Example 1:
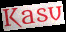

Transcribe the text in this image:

Kasu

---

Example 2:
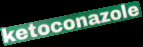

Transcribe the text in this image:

ketoconazole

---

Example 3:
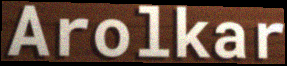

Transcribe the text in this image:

Arolkar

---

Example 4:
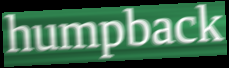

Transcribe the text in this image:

humpback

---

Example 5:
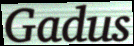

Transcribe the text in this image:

Gadus